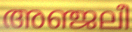
അഞ്ജലീ